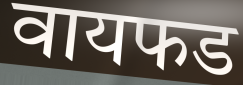
वायफड